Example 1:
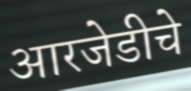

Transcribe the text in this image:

आरजेडीचे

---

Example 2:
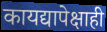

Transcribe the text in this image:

कायद्यापेक्षाही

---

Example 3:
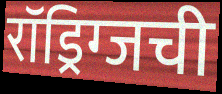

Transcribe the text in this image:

रॉड्रिग्जची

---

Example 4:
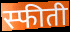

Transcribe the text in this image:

स्फीती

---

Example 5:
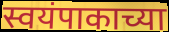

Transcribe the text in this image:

स्वयंपाकाच्या